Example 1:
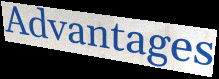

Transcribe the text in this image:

Advantages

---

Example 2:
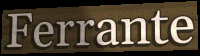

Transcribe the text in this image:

Ferrante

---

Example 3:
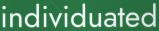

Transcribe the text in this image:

individuated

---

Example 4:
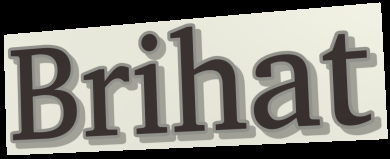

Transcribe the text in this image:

Brihat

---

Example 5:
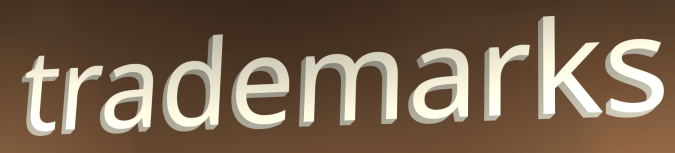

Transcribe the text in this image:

trademarks